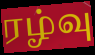
ரழ்வு